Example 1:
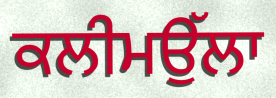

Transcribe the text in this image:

ਕਲੀਮਉੱਲਾ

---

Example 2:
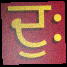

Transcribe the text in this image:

ਦੁਃ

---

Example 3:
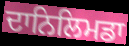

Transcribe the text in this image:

ਦਾਨਿਲਿਮਡਾ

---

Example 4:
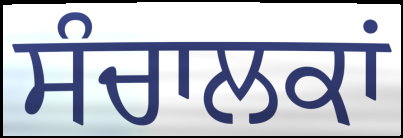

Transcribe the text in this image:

ਸੰਚਾਲਕਾਂ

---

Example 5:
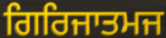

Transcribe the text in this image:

ਗਿਰਿਜਾਤਮਜ